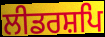
ਲੀਡਰਸ਼ਪਿ